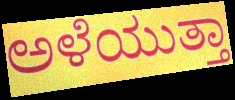
ಅಳೆಯುತ್ತಾ